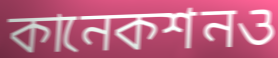
কানেকশনও